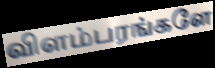
விளம்பரங்களே